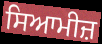
ਸਿਆਮੀਜ਼